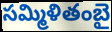
సమ్మిళితంబై